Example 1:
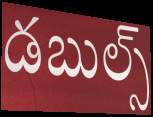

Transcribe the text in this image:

డబుల్స్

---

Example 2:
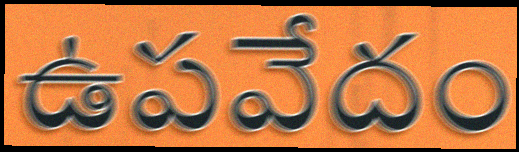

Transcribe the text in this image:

ఉపవేదం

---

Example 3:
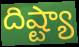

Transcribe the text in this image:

దిష్ట్యా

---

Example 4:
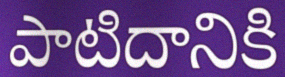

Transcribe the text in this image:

పాటిదానికి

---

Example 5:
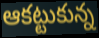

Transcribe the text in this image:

ఆకట్టుకున్న